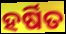
ହର୍ଷିତ